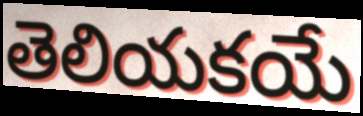
తెలియకయే